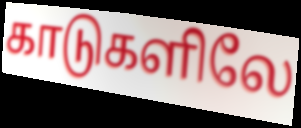
காடுகளிலே